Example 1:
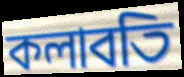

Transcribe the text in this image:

কলাবতি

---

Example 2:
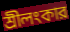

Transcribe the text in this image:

শ্রীলংকার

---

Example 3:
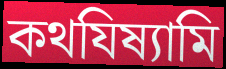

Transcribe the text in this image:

কথযিষ্যামি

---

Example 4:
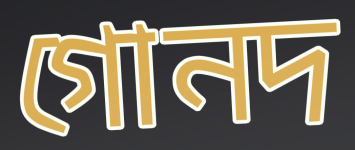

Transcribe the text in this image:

গোনদ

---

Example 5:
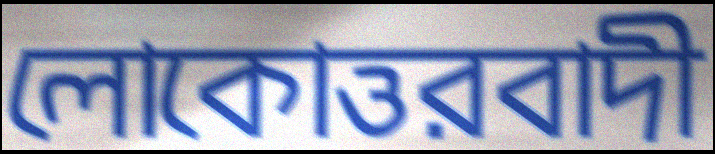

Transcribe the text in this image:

লোকোত্তরবাদী